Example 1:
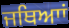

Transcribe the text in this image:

ਜਥਿਆਾਂ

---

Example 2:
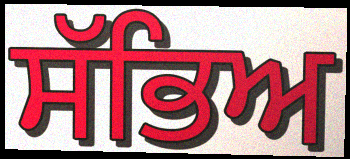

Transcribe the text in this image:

ਸੱਭਿਅ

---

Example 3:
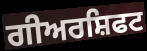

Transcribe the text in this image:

ਗੀਅਰਸ਼ਿਫਟ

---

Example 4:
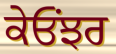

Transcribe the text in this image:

ਕੇਓਂਝਰ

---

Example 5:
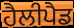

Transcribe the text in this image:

ਹੈਲੀਪੈਡ